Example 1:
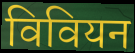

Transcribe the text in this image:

विवियन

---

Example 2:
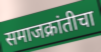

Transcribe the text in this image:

समाजक्रांतीचा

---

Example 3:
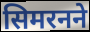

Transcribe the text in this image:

सिमरनने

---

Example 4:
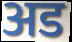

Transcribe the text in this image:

अड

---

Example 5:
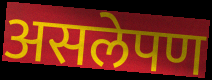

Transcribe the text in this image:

असलेपण